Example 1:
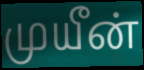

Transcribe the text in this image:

முயீன்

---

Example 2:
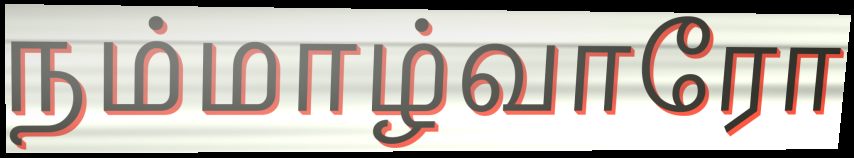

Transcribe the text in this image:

நம்மாழ்வாரோ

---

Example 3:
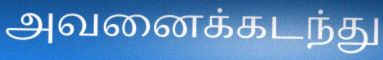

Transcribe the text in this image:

அவனைக்கடந்து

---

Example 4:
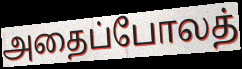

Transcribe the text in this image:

அதைப்போலத்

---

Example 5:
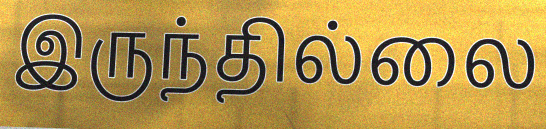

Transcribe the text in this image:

இருந்தில்லை